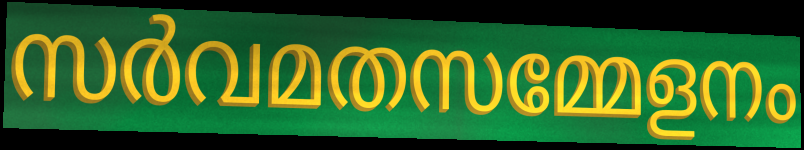
സർവമതസമ്മേളനം